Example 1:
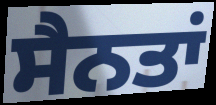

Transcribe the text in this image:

ਸੈਨਤਾਂ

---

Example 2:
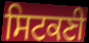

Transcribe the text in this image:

ਸਿਟਕਣੀ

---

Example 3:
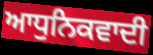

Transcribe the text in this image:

ਆਧੁਨਿਕਵਾਦੀ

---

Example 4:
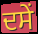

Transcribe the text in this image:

ਦਸੇਂ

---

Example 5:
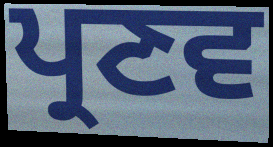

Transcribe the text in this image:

ਪ੍ਰਣਵ